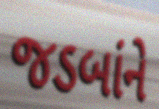
જડબાંને